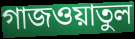
গাজওয়াতুল